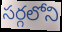
సర్గలోని